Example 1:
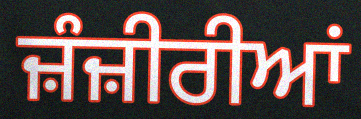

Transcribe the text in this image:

ਜ਼ੰਜ਼ੀਰੀਆਂ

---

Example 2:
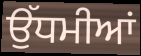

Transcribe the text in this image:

ਉੱਧਮੀਆਂ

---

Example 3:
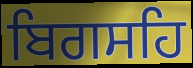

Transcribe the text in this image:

ਬਿਗਸਹਿ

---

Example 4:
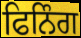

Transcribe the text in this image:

ਫਿਨਿੰਗ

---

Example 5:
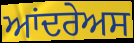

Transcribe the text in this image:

ਆਂਦਰੇਅਸ